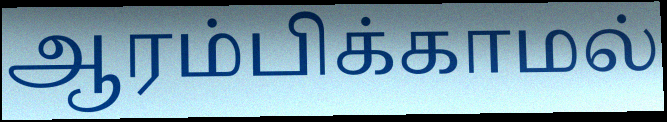
ஆரம்பிக்காமல்